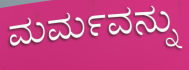
ಮರ್ಮವನ್ನು